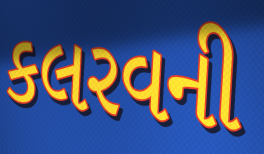
કલરવની